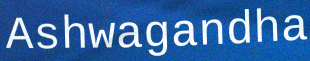
Ashwagandha